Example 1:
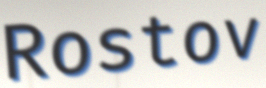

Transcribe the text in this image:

Rostov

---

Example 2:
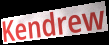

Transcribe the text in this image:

Kendrew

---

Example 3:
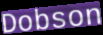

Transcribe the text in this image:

Dobson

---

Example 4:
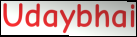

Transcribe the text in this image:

Udaybhai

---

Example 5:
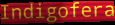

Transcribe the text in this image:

Indigofera